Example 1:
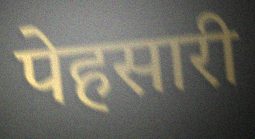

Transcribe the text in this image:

पेहसारी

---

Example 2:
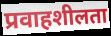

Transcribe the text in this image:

प्रवाहशीलता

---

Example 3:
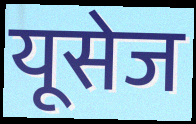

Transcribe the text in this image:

यूसेज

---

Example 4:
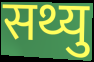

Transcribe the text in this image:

सथ्यु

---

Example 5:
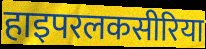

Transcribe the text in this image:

हाइपरलकसीरिया